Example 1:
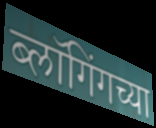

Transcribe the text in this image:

ब्लॉगिंगच्या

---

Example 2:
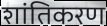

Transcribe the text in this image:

शांतिकरण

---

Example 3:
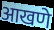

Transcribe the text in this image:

आखणे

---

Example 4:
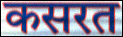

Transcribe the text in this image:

कसरत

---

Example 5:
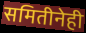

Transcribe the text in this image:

समितीनेही